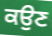
ਕਉਣ